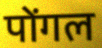
पोंगल